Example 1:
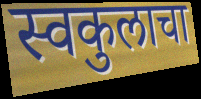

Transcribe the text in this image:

स्वकुलाचा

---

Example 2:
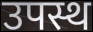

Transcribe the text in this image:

उपस्थ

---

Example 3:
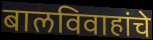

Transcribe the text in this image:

बालविवाहांचे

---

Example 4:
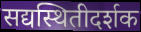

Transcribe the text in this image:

सद्यस्थितीदर्शक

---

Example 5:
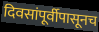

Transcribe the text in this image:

दिवसांपूर्वीपासूनच